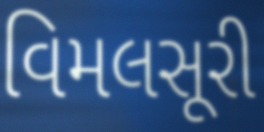
વિમલસૂરી